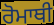
ਰੋਮਾਥੀ